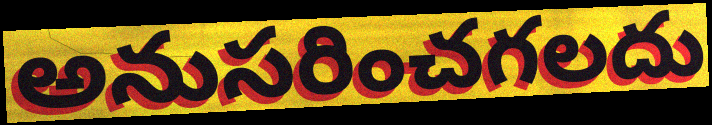
అనుసరించగలదు